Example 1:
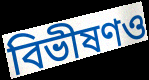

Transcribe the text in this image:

বিভীষণও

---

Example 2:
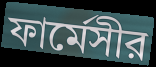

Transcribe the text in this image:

ফার্মেসীর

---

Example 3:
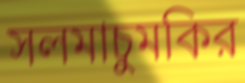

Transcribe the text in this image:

সলমাচুমকির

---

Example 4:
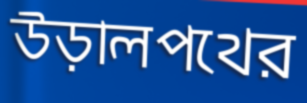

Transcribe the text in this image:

উড়ালপথের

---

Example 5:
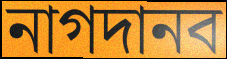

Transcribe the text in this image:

নাগদানব